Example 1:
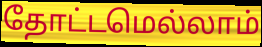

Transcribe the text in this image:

தோட்டமெல்லாம்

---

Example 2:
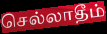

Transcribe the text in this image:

செல்லாதீம்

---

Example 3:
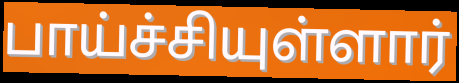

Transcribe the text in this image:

பாய்ச்சியுள்ளார்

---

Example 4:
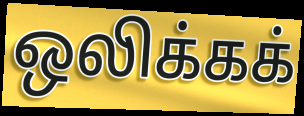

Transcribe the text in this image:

ஒலிக்கக்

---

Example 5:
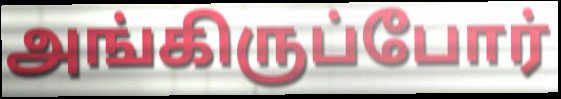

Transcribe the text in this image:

அங்கிருப்போர்